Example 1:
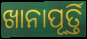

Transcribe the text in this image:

ଖାନାପୂର୍ତ୍ତି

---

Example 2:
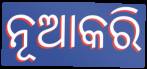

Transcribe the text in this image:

ନୂଆକରି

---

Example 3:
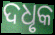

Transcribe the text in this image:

ଦଧୃକ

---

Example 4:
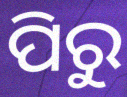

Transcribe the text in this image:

ପିରୁ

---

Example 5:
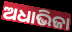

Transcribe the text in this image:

ଅଧାଭିଜା